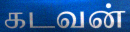
கடவன்